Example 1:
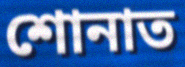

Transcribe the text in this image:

শোনাত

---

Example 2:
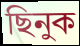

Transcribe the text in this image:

ছিনুক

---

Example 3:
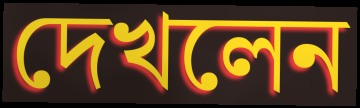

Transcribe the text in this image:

দেখলেন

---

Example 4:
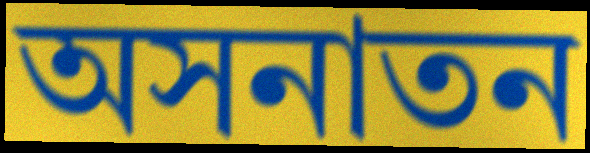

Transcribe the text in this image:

অসনাতন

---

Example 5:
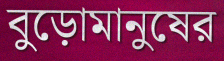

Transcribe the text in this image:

বুড়োমানুষের